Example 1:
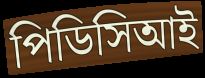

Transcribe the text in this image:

পিডিসিআই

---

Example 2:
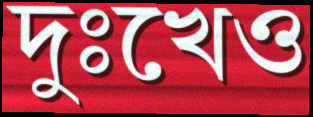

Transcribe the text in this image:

দুঃখেও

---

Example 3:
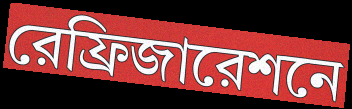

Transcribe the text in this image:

রেফ্রিজারেশনে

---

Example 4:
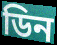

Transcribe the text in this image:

ডিন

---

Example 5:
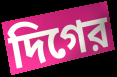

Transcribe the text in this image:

দিগের